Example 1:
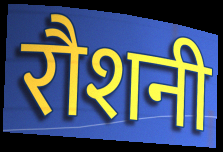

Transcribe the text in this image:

रौशनी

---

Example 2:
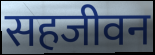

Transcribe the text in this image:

सहजीवन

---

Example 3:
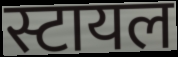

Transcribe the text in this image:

स्टायल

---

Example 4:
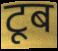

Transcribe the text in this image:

टूब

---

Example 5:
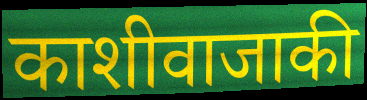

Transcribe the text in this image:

काशीवाजाकी